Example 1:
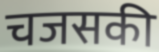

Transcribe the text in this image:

चजसकी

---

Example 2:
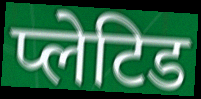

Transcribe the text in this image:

प्लेटिड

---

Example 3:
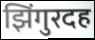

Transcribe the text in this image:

झिंगुरदह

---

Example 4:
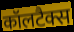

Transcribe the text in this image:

कॉलटैक्स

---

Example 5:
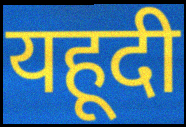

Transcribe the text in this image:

यहूदी